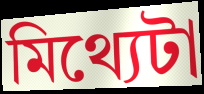
মিথ্যেটা